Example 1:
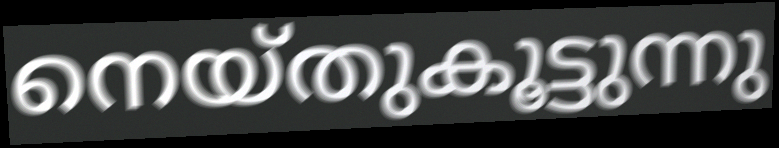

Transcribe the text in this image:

നെയ്തുകൂട്ടുന്നു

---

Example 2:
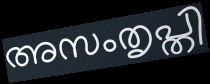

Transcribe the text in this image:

അസംതൃപ്തി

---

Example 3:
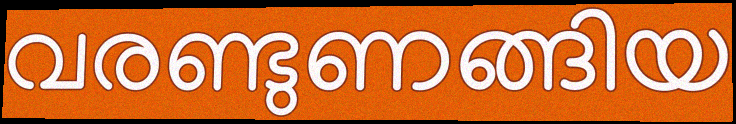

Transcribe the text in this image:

വരണ്ടുണങ്ങിയ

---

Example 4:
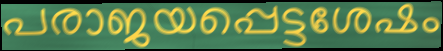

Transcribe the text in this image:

പരാജയപ്പെട്ടശേഷം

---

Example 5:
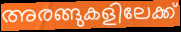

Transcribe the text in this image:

അരങ്ങുകളിലേക്ക്